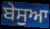
ਬੇਸੁਆ